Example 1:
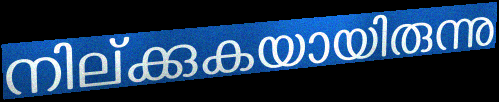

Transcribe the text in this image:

നില്ക്കുകയായിരുന്നു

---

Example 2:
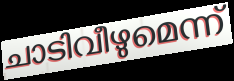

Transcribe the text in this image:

ചാടിവീഴുമെന്ന്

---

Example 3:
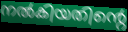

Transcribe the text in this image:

നൽകിയതിന്റെ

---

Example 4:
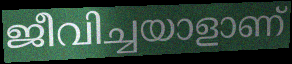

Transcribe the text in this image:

ജീവിച്ചയാളാണ്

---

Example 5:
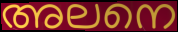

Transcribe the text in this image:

അലനെ